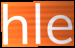
hle